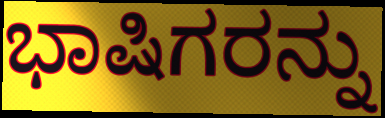
ಭಾಷಿಗರನ್ನು